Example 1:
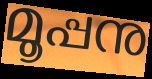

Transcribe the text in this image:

മൂപ്പനു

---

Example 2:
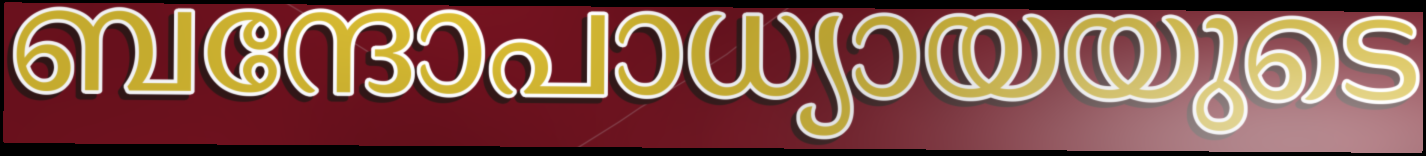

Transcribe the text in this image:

ബന്ദോപാധ്യായയുടെ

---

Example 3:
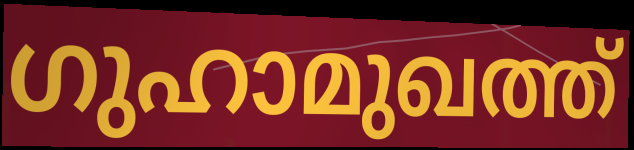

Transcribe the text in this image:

ഗുഹാമുഖത്ത്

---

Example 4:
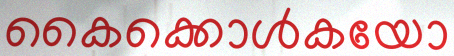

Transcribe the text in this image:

കൈക്കൊൾകയോ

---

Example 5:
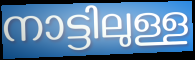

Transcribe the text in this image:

നാട്ടിലുള്ള